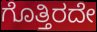
ಗೊತ್ತಿರದೇ